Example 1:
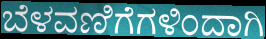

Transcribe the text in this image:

ಬೆಳವಣಿಗೆಗಳಿಂದಾಗಿ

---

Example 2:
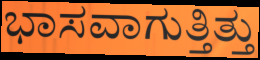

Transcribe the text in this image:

ಭಾಸವಾಗುತ್ತಿತ್ತು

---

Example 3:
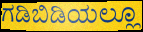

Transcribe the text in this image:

ಗಡಿಬಿಡಿಯಲ್ಲೂ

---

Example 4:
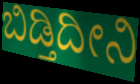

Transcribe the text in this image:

ಬಿಡ್ತಿದೀನಿ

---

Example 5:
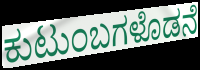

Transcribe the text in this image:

ಕುಟುಂಬಗಳೊಡನೆ